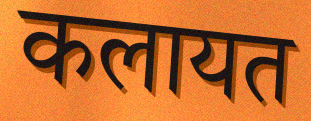
कलायत